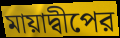
মায়াদ্বীপের